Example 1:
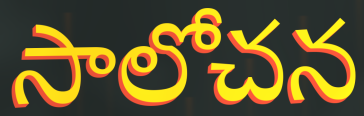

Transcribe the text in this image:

సాలోచన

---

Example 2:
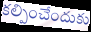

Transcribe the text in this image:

కల్పించేందుకు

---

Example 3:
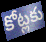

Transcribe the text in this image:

కోట్లకు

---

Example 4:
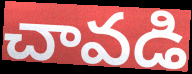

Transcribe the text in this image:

చావడి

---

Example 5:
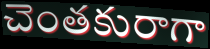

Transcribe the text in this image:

చెంతకురాగా